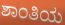
ಶಾಂತಿಯ